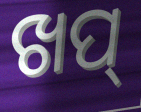
ଖପ୍